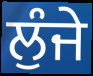
ਲੁੰਜੇ